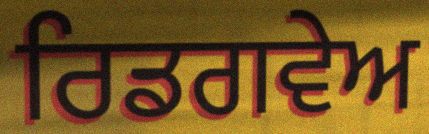
ਰਿਡਗਵੇਅ